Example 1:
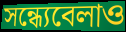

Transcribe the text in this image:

সন্ধ্যেবেলাও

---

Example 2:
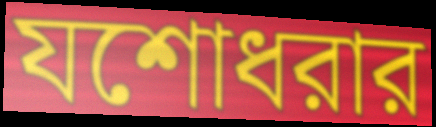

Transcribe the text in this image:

যশোধরার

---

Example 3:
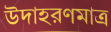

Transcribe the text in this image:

উদাহরণমাত্র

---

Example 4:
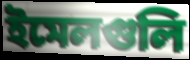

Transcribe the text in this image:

ইমেলগুলি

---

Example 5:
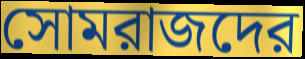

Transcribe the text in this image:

সোমরাজদের